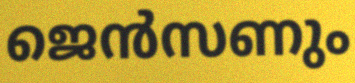
ജെൻസണും